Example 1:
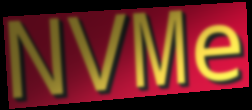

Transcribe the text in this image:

NVMe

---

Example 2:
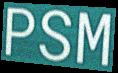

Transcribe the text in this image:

PSM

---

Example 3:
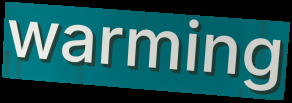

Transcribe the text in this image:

warming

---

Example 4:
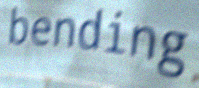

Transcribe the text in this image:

bending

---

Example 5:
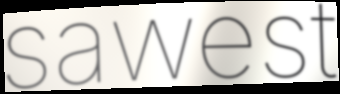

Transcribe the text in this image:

sawest